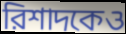
রিশাদকেও